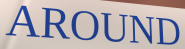
AROUND